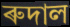
ৰুদাল